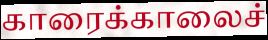
காரைக்காலைச்